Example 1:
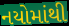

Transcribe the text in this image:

નયોમાંથી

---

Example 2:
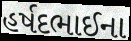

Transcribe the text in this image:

હર્ષદભાઈના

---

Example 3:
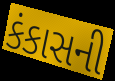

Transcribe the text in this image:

કંકાસની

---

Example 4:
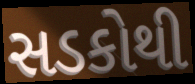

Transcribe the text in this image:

સડકોથી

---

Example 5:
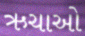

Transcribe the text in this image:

ઋચાઓ